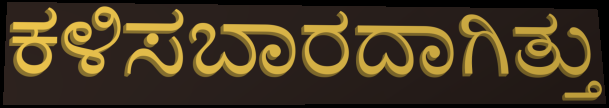
ಕಳಿಸಬಾರದಾಗಿತ್ತು